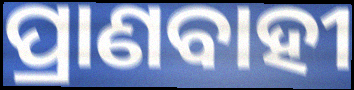
ପ୍ରାଣବାହୀ